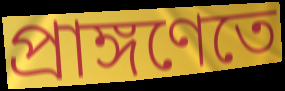
প্রাঙ্গণেতে